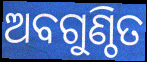
ଅବଗୁଣ୍ଠିତ